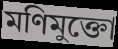
মণিমুক্তো